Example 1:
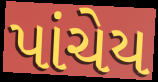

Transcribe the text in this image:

પાંચેય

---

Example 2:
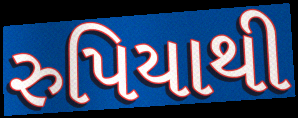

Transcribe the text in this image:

રુપિયાથી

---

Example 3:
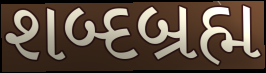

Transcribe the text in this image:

શબ્દબ્રહ્મ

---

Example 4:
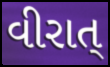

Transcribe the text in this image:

વીરાત્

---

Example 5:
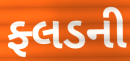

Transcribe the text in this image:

ફ્લડની